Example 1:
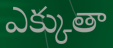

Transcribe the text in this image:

ఎక్కుతా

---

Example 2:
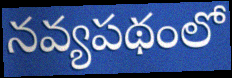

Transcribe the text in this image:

నవ్యపథంలో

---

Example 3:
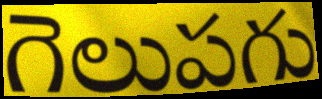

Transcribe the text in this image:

గెలుపగు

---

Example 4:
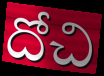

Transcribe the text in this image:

దోచి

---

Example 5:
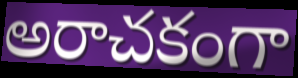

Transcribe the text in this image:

అరాచకంగా